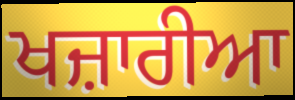
ਖਜ਼ਾਰੀਆ